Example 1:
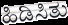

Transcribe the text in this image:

ಹಿಡಿಸಿತು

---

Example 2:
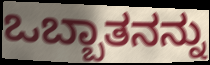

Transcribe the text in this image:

ಒಬ್ಬಾತನನ್ನು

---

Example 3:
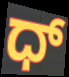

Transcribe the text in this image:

ಧ್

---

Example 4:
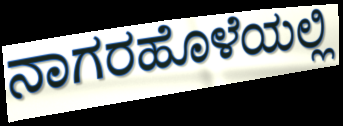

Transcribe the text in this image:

ನಾಗರಹೊಳೆಯಲ್ಲಿ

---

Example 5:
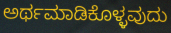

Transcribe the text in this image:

ಅರ್ಥಮಾಡಿಕೊಳ್ಳವುದು